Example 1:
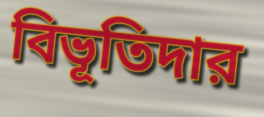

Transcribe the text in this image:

বিভূতিদার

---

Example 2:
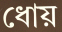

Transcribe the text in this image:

ধোয়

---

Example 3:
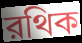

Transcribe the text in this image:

রথিক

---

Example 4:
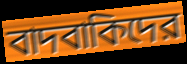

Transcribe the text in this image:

বাদবাকিদের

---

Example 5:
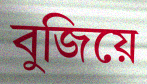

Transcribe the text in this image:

বুজিয়ে